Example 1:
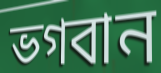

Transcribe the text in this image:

ভগবান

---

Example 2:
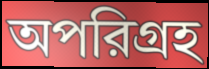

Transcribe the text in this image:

অপরিগ্রহ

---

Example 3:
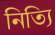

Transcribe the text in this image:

নিত্যি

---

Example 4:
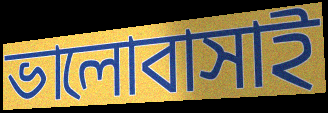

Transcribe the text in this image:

ভালোবাসাই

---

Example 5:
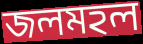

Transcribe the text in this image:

জলমহল